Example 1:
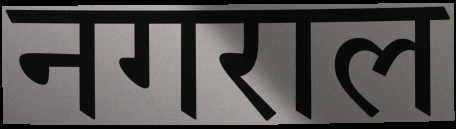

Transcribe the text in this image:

नगराल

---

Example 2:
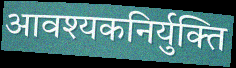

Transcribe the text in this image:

आवश्यकनिर्युक्ति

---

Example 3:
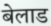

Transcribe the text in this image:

बेलाड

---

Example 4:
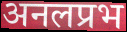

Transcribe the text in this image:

अनलप्रभ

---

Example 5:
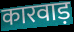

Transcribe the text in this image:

कारवाड़